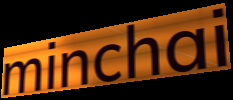
minchai